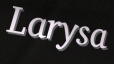
Larysa